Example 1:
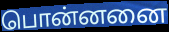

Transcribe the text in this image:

பொன்னனை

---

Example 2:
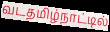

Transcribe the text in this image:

வடதமிழ்நாட்டில்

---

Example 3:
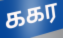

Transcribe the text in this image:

ககர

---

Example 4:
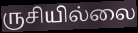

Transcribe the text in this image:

ருசியில்லை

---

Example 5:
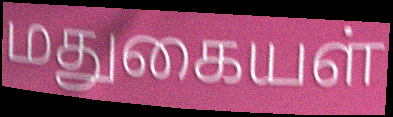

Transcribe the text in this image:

மதுகையள்